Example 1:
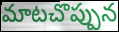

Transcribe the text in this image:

మాటచొప్పున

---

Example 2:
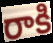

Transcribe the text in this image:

రాకి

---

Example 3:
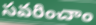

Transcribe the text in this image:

సవరించాం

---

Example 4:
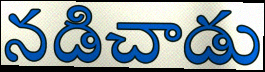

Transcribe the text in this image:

నడిచాడు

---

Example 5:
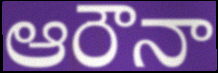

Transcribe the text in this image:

ఆరౌనా